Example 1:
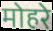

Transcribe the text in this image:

मोहरे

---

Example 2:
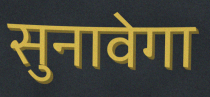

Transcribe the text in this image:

सुनावेगा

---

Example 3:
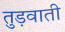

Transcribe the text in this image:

तुड़वाती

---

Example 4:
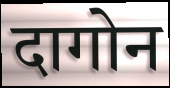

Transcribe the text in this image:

दागोन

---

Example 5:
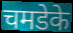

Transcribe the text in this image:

चमडेके